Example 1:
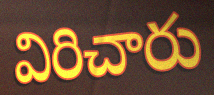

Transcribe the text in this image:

విరిచారు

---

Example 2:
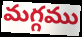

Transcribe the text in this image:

మగ్గము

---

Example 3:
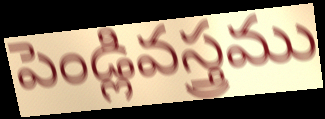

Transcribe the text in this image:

పెండ్లివస్త్రము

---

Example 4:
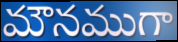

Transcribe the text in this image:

మౌనముగా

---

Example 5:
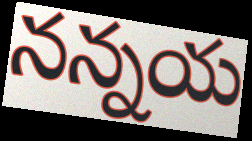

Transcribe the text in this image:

నన్నయ